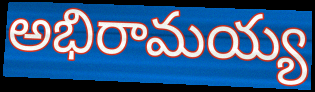
అభిరామయ్య